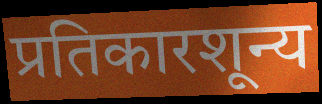
प्रतिकारशून्य